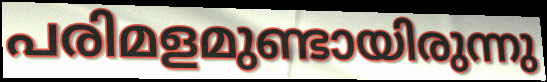
പരിമളമുണ്ടായിരുന്നു